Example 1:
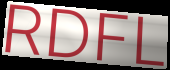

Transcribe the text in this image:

RDFL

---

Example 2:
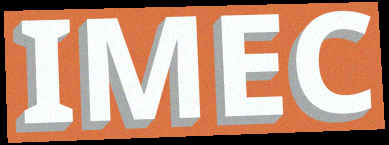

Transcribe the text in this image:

IMEC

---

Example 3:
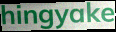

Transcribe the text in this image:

hingyake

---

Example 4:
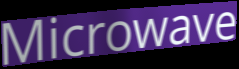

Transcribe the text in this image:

Microwave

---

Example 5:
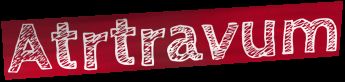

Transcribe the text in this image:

Atrtravum